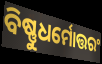
ବିଷ୍ଣୁଧର୍ମୋତ୍ତରଂ